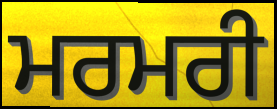
ਮਰਮਰੀ